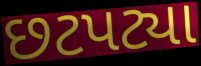
છટપટ્યા